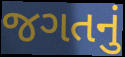
જગતનું